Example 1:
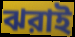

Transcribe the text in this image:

ঝরাই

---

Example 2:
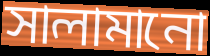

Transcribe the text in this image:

সালামানো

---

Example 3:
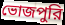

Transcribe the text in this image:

ভোজপুরি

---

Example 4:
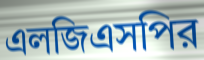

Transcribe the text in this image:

এলজিএসপির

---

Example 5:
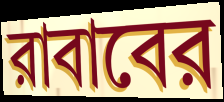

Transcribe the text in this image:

রাবাবের